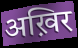
अख़िर